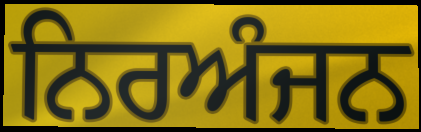
ਨਿਰਅੰਜਨ